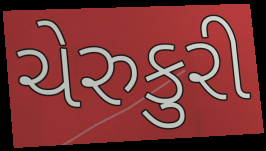
ચેરુકુરી